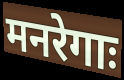
मनरेगाः